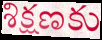
శిక్షణకు